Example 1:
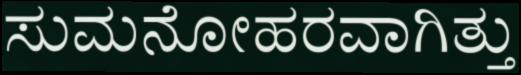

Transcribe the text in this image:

ಸುಮನೋಹರವಾಗಿತ್ತು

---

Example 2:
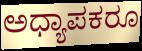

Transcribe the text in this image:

ಅಧ್ಯಾಪಕರೂ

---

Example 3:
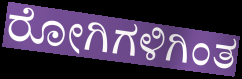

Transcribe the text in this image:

ರೋಗಿಗಳಿಗಿಂತ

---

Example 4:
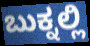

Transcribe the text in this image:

ಬುಕ್ನಲ್ಲಿ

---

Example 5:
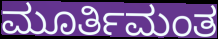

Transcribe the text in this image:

ಮೂರ್ತಿಮಂತ